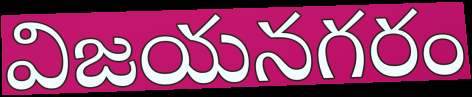
విజయనగరం